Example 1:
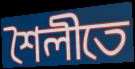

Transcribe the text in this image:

শৈলীতে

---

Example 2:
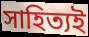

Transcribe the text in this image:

সাহিত্যই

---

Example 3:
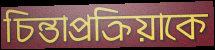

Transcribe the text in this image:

চিন্তাপ্রক্রিয়াকে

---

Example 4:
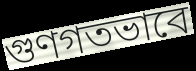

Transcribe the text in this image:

গুণগতভাবে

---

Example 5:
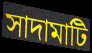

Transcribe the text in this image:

সাদামাটি